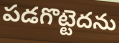
పడగొట్టెదను